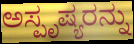
ಅಸ್ಪೃಷ್ಯರನ್ನು